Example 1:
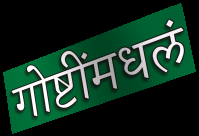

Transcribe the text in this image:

गोष्टींमधलं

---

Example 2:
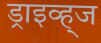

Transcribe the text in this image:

ड्राइव्ह्ज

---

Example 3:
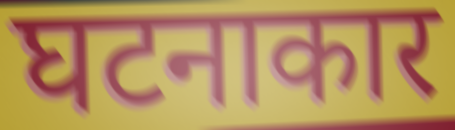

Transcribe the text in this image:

घटनाकार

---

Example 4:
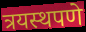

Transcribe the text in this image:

त्रयस्थपणे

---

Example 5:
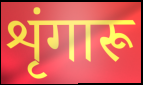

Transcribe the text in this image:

शृंगारू